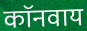
कॉनवाय